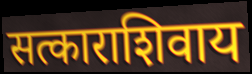
सत्काराशिवाय